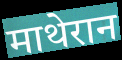
माथेरान